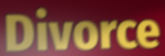
Divorce